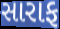
સારાફ